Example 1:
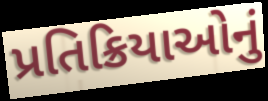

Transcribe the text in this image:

પ્રતિક્રિયાઓનું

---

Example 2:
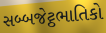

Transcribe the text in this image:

સબ્બજેટ્ઠભાતિકો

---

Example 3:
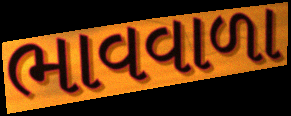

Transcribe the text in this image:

ભાવવાળા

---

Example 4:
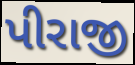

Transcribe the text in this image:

પીરાજી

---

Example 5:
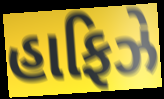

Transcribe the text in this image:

હાફિઝે